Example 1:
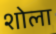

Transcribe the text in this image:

शोला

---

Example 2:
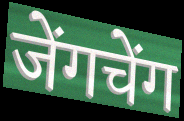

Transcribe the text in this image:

जेंगचेंग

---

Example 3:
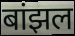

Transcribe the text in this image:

बांझल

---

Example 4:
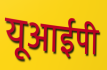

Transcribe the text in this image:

यूआईपी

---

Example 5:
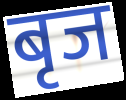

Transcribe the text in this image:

बृज